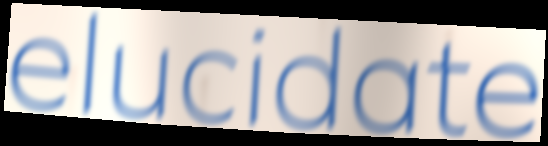
elucidate